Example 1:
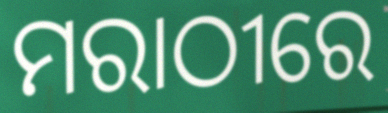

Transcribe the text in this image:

ମରାଠୀରେ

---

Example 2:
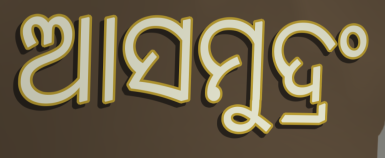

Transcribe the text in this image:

ଆସମୁଦ୍ରଂ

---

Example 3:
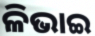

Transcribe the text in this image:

ଳିଭାଇ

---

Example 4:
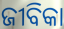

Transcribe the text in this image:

ଜୀବିକା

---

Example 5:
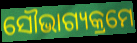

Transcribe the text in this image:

ସୌଭାଗ୍ୟକ୍ରମେ